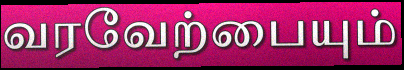
வரவேற்பையும்